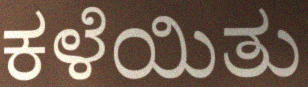
ಕಳೆಯಿತು